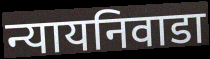
न्यायनिवाडा